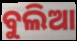
ବୁଲିଆ